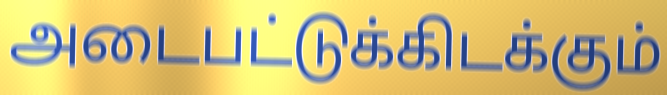
அடைபட்டுக்கிடக்கும்